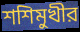
শশিমুখীর